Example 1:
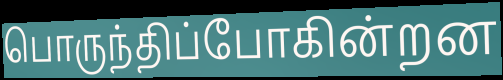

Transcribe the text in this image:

பொருந்திப்போகின்றன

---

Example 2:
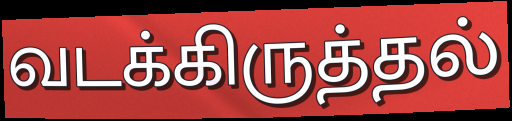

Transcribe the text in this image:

வடக்கிருத்தல்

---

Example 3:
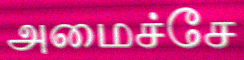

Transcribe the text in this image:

அமைச்சே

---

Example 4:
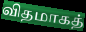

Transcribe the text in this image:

விதமாகத்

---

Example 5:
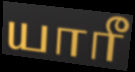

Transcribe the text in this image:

யாரீ